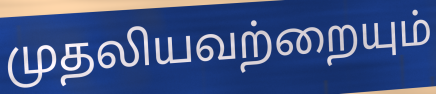
முதலியவற்றையும்